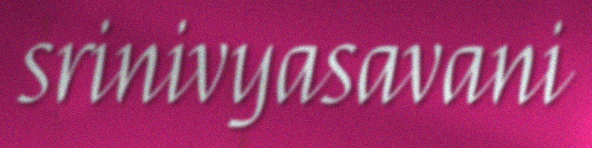
srinivyasavani